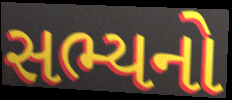
સભ્યનો